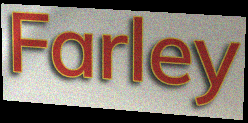
Farley